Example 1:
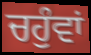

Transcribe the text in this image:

ਚਹੁੰਵਾਂ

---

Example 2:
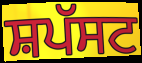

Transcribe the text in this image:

ਸ਼ਪੱਸਟ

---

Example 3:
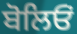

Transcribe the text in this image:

ਬੋਲਿਓਂ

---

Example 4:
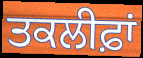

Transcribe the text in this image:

ਤਕਲੀਫ਼ਾਂ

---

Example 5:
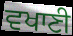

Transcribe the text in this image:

ਵਖਾਣੀ